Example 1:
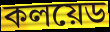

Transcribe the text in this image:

কলয়েড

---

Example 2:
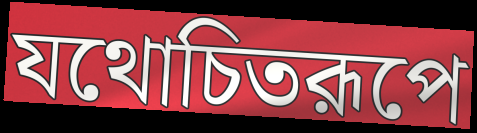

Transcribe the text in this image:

যথোচিতরূপে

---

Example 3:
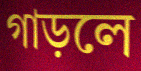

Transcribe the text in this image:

গাড়লে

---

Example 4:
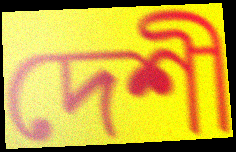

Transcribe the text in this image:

দেশী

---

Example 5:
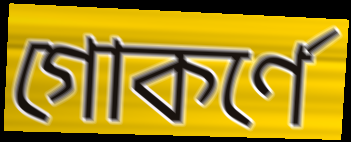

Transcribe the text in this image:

গোকর্ণে